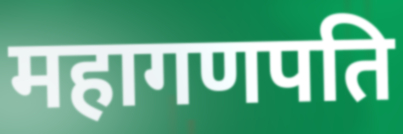
महागणपति